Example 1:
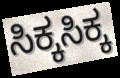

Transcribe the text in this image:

ಸಿಕ್ಕಸಿಕ್ಕ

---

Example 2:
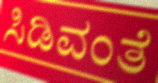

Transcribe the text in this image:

ಸಿಡಿವಂತೆ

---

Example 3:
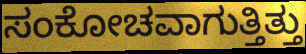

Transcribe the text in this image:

ಸಂಕೋಚವಾಗುತ್ತಿತ್ತು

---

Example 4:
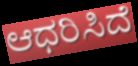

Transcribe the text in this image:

ಆಧರಿಸಿದೆ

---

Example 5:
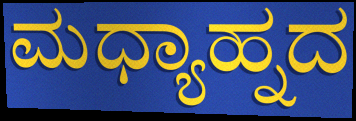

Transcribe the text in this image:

ಮಧ್ಯಾಹ್ನದ